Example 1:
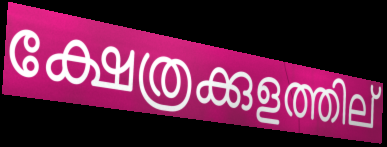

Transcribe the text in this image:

ക്ഷേത്രക്കുളത്തില്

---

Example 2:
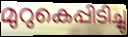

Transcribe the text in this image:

മുറുകെപ്പിടിച്ചു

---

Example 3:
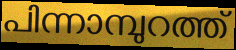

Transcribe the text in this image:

പിന്നാമ്പുറത്ത്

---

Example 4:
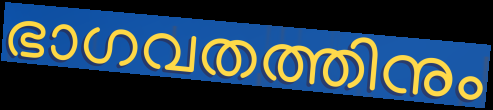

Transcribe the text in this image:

ഭാഗവതത്തിനും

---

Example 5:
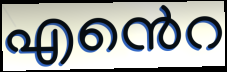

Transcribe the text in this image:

എൻെറ